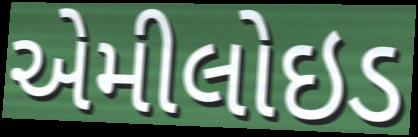
એમીલોઇડ